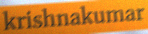
krishnakumar